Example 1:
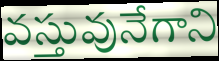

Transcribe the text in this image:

వస్తువునేగాని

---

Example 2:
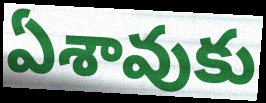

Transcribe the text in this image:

ఏశావుకు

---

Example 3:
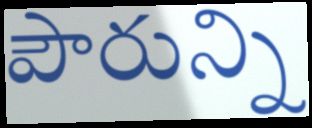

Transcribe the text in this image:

పౌరున్ని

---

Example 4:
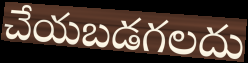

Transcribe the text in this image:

చేయబడగలదు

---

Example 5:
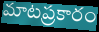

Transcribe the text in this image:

మాటప్రకారం